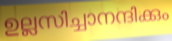
ഉല്ലസിച്ചാനന്ദിക്കും